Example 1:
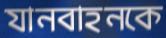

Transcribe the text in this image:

যানবাহনকে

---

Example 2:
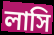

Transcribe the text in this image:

লাসি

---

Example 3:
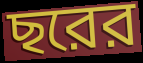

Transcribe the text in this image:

ছরের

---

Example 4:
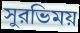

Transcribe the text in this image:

সুরভিময়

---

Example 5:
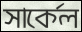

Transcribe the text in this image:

সার্কেল